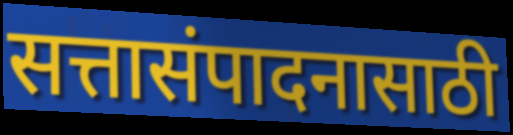
सत्तासंपादनासाठी